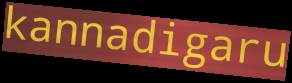
kannadigaru